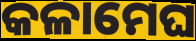
କଳାମେଘ